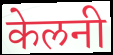
केलनी